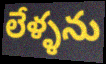
లేళ్ళను